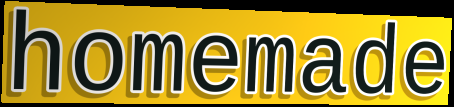
homemade